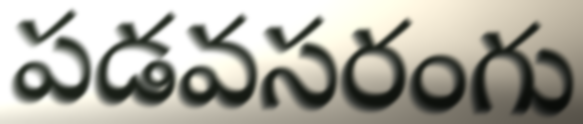
పడవసరంగు